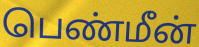
பெண்மீன்